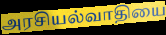
அரசியல்வாதியை